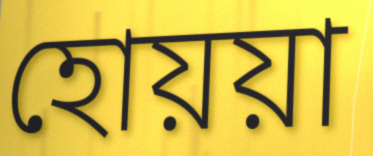
হোয়য়া